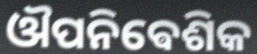
ଔପନିଵେଶିକ